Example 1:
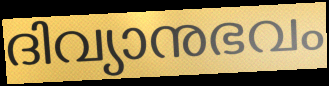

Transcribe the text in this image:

ദിവ്യാനുഭവം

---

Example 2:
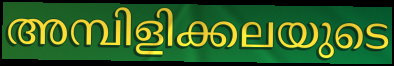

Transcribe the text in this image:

അമ്പിളിക്കലയുടെ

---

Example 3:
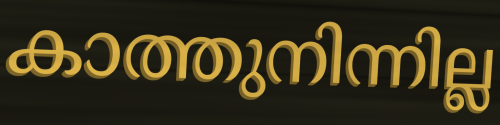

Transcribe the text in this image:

കാത്തുനിന്നില്ല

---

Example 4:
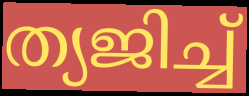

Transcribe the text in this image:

ത്യജിച്ച്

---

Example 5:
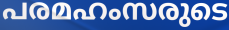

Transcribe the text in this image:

പരമഹംസരുടെ